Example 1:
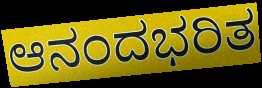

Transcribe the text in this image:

ಆನಂದಭರಿತ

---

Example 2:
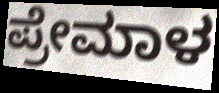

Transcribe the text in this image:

ಪ್ರೇಮಾಳ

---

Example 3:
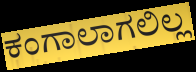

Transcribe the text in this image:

ಕಂಗಾಲಾಗಲಿಲ್ಲ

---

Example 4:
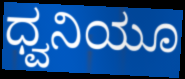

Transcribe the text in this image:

ಧ್ವನಿಯೂ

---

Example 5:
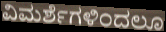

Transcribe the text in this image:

ವಿಮರ್ಶೆಗಳಿಂದಲೂ